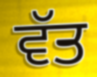
ਵੱਤ